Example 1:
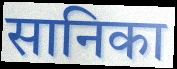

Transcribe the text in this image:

सानिका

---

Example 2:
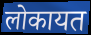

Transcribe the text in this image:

लोकायत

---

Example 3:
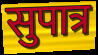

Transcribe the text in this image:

सुपात्र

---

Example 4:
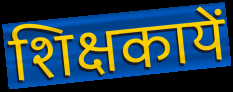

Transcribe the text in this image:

शिक्षकायें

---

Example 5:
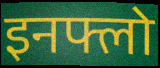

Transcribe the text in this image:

इनफ्लो